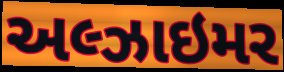
અલ્ઝાઇમર